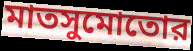
মাতসুমোতোর